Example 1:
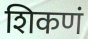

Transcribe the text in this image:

शिकणं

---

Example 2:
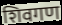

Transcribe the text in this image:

शिवगण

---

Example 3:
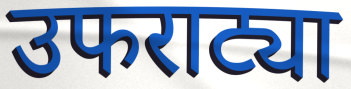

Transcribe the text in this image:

उफराट्या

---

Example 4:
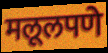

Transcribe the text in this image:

मलूलपणे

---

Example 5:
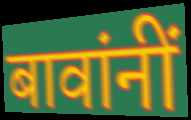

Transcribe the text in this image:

बावांनीं